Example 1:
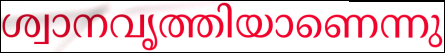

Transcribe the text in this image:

ശ്വാനവൃത്തിയാണെന്നു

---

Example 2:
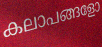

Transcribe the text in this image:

കലാപങ്ങളോ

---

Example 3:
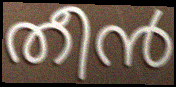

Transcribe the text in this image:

തീൻ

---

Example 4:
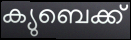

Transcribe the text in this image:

ക്യുബെക്ക്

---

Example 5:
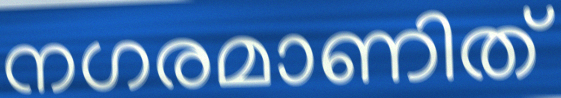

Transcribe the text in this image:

നഗരമാണിത്